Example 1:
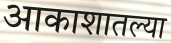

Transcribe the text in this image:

आकाशातल्या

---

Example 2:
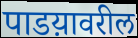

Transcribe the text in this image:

पाडय़ावरील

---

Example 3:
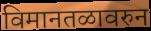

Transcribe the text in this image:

विमानतळावरुन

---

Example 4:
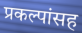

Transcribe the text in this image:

प्रकल्पांसह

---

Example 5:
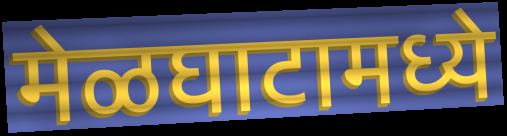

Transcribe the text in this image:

मेळघाटामध्ये